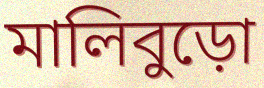
মালিবুড়ো